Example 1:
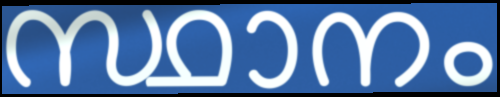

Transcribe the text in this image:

സ്ഥാനം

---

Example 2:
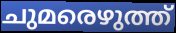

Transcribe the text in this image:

ചുമരെഴുത്ത്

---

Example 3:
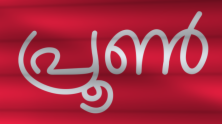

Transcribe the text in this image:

പ്രൂൺ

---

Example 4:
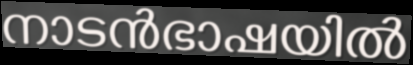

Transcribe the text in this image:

നാടൻഭാഷയിൽ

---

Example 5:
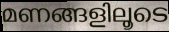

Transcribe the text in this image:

മണങ്ങളിലൂടെ